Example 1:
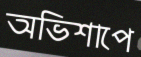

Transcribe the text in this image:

অভিশাপে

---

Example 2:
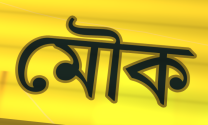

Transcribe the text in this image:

মৌক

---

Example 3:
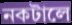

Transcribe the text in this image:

নকটালে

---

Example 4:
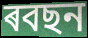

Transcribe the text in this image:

ৰবছন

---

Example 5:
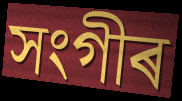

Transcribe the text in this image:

সংগীৰ